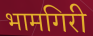
भामगिरी